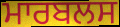
ਮਾਰਬਲਸ